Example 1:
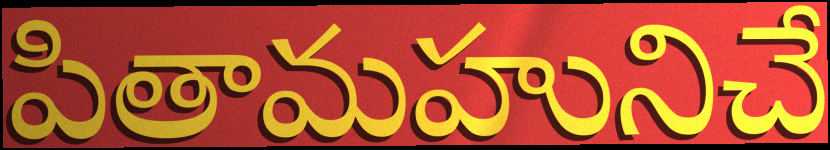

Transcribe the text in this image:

పితామహునిచే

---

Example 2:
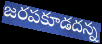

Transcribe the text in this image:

జరపకూడదన్న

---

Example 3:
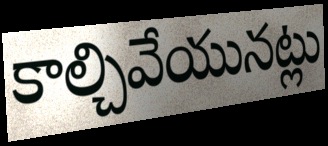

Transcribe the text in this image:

కాల్చివేయునట్లు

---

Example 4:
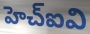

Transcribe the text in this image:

హెచ్ఐవి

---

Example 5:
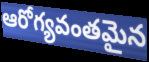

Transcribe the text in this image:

ఆరోగ్యవంతమైన